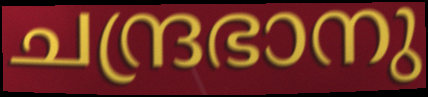
ചന്ദ്രഭാനു